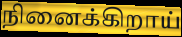
நினைக்கிறாய்